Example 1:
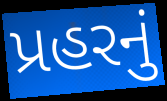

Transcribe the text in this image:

પ્રહરનું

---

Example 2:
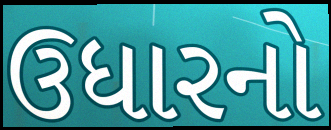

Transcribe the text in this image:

ઉધારનો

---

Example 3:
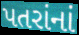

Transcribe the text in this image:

પતરાંનાં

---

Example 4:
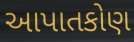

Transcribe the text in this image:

આપાતકોણ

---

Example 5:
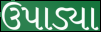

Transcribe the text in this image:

ઉપાડ્યા